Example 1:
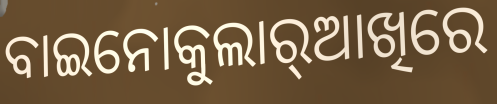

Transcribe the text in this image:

ବାଇନୋକୁଲାର୍‌ଆଖିରେ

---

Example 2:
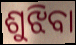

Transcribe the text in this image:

ଶୁଝିବା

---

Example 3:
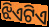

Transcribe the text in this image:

ଝିଏଟିଏ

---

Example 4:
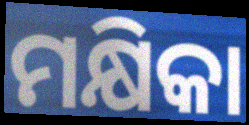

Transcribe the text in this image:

ମକ୍ଷିକା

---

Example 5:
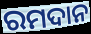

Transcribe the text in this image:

ରମଦାନ